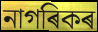
নাগৰিকৰ